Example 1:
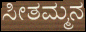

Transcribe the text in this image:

ಸೀತಮ್ಮನ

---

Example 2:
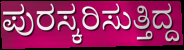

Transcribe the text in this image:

ಪುರಸ್ಕರಿಸುತ್ತಿದ್ದ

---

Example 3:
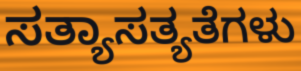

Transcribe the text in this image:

ಸತ್ಯಾಸತ್ಯತೆಗಳು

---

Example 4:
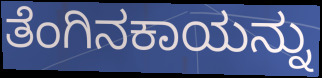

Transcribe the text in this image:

ತೆಂಗಿನಕಾಯನ್ನು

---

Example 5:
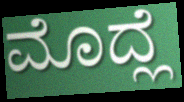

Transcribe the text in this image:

ಮೊದ್ಲೆ